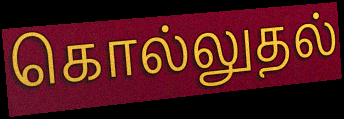
கொல்லுதல்